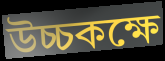
উচ্চকক্ষে